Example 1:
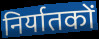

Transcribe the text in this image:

निर्यातकों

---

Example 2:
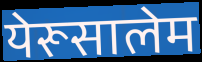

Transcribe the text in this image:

येरूसालेम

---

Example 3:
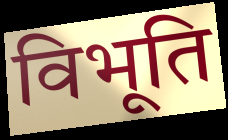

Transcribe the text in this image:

विभूति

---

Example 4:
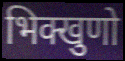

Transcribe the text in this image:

भिक्खुणो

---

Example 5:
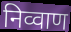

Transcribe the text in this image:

निव्वाण